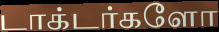
டாக்டர்களோ